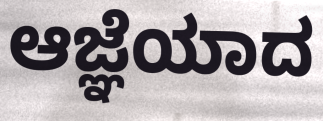
ಆಜ್ಞೆಯಾದ